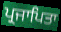
ਪ੍ਰਜਾਪਿਤਾ